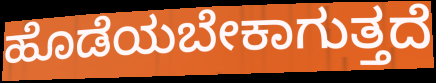
ಹೊಡೆಯಬೇಕಾಗುತ್ತದೆ